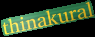
thinakural